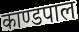
काण्डपाल